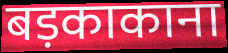
बड़काकाना